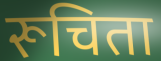
रूचिता